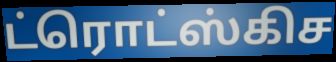
ட்ரொட்ஸ்கிச